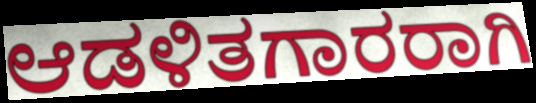
ಆಡಳಿತಗಾರರಾಗಿ